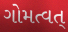
ગોમત્વત્